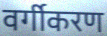
वर्गीकरण